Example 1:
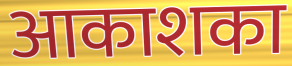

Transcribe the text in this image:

आकाशका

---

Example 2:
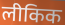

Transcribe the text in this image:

लीकिक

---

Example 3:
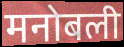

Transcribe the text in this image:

मनोबली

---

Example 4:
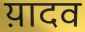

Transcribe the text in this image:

य़ादव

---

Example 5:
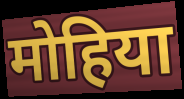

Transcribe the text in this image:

मोहिया